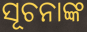
ସୂଚନାଙ୍କ